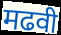
मढवी